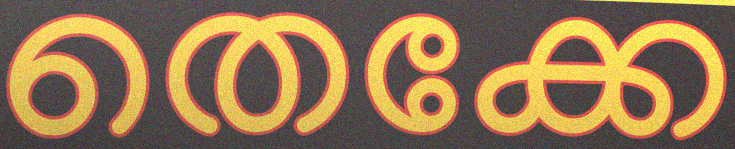
തെക്കേ